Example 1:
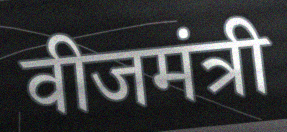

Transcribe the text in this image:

वीजमंत्री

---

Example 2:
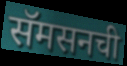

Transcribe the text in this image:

सॅमसनची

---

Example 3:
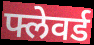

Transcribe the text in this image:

फ्लेवर्ड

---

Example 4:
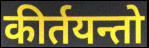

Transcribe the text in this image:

कीर्तयन्तो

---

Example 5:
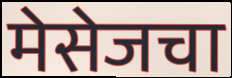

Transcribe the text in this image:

मेसेजचा